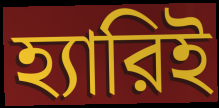
হ্যারিই